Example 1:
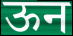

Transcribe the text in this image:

ऊन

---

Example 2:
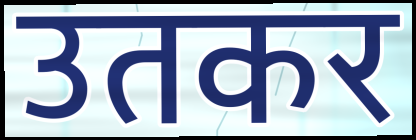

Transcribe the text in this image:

उतकर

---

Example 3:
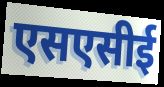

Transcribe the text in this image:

एसएसीई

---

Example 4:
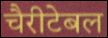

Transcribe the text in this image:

चैरीटेबल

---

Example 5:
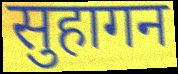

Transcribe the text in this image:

सुहागन